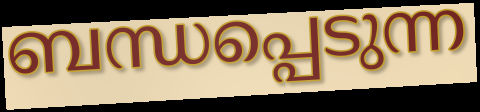
ബന്ധപ്പെടുന്ന